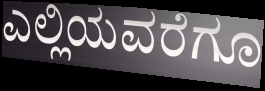
ಎಲ್ಲಿಯವರೆಗೂ